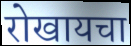
रोखायचा